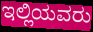
ಇಲ್ಲಿಯವರು